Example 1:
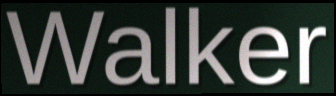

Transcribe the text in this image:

Walker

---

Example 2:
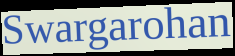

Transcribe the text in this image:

Swargarohan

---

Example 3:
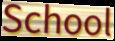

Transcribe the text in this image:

School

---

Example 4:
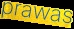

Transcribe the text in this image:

prawas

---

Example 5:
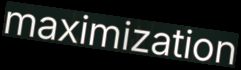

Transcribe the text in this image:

maximization